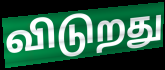
விடுறது